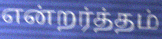
என்றர்த்தம்